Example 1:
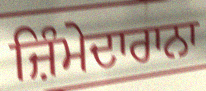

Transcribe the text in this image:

ਜ਼ਿੰਮੇਦਾਰਾਨਾ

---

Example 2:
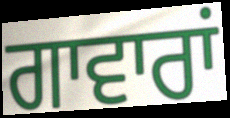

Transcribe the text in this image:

ਗਾਵਾਰਾਂ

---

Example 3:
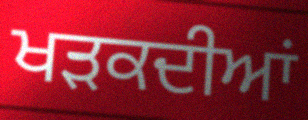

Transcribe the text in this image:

ਖੜਕਦੀਆਂ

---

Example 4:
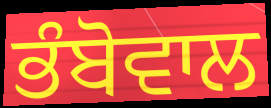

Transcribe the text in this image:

ਭੰਬੋਵਾਲ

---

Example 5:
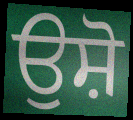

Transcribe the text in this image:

ਉਸ਼ੋ